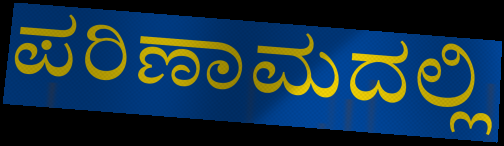
ಪರಿಣಾಮದಲ್ಲಿ